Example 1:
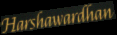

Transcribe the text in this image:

Harshawardhan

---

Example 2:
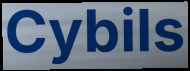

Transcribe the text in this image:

Cybils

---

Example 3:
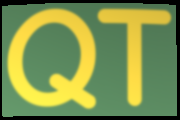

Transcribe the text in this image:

QT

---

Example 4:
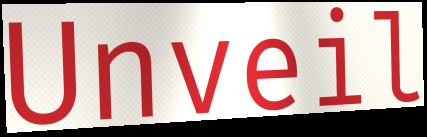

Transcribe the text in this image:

Unveil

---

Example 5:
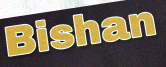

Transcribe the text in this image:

Bishan